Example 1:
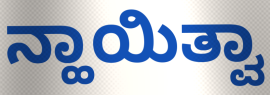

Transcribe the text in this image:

ನ್ಹಾಯಿತ್ವಾ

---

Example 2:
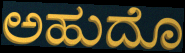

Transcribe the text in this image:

ಅಹುದೊ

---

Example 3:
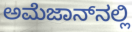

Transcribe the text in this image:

ಅಮೆಜಾನ್‌ನಲ್ಲಿ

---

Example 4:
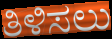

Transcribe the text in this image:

ತಿಳಿಸಲು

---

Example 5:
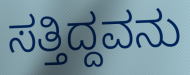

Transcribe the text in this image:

ಸತ್ತಿದ್ದವನು